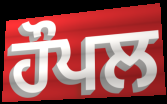
ਹੌਪਲ